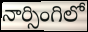
నార్సింగిలో